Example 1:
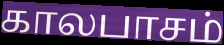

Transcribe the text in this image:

காலபாசம்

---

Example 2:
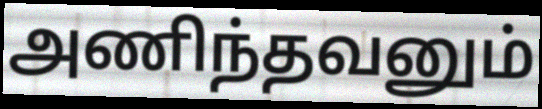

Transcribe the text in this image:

அணிந்தவனும்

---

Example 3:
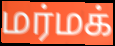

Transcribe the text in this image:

மர்மக்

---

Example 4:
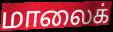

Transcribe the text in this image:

மாலைக்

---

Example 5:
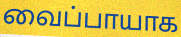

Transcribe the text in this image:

வைப்பாயாக